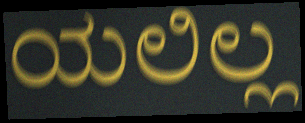
ಯಲಿಲ್ಲ